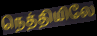
நெத்தியிலே